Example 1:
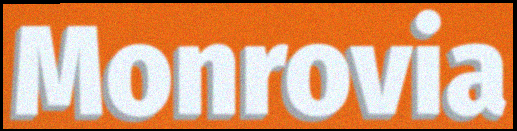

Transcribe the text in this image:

Monrovia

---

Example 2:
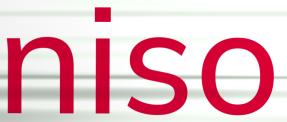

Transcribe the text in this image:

niso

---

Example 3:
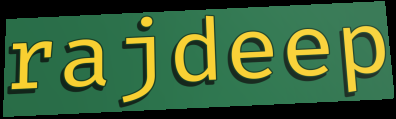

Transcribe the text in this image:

rajdeep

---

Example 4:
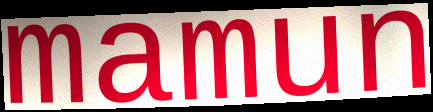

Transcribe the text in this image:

mamun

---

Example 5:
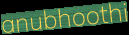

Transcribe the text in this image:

anubhoothi